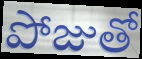
పోజుతో